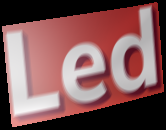
Led